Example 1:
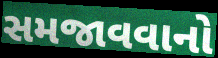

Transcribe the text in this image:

સમજાવવાનો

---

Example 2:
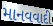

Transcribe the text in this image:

માનવવાદી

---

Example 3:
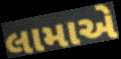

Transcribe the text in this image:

લામાએ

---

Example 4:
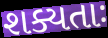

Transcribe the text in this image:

શક્યતાઃ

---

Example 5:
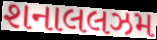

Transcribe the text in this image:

શનાલલઝમ